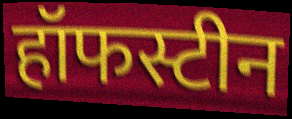
हॉफस्टीन